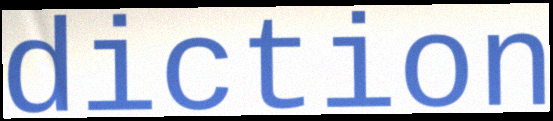
diction